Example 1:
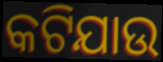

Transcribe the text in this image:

କଟିଯାଉ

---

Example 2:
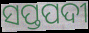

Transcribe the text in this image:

ସପ୍ତପଦୀ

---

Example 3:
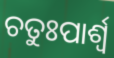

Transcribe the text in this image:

ଚତୁଃପାର୍ଶ୍ବ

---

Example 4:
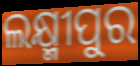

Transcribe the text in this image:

ଲକ୍ଷ୍ମୀପୁର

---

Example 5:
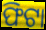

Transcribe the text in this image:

ଫିଟା